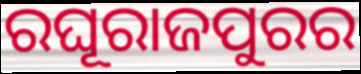
ରଘୂରାଜପୁରର